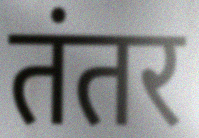
तंतर